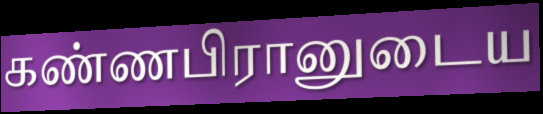
கண்ணபிரானுடைய